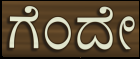
ಗೆಂದೇ